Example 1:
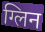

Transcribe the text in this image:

ग्लिन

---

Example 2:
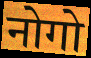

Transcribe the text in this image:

नोगो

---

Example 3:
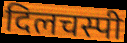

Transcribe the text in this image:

दिलचस्‍पी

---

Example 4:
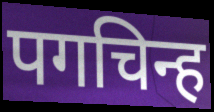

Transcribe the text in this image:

पगचिन्ह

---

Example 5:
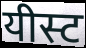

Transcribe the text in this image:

यीस्ट